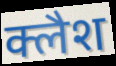
क्लैश